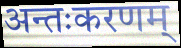
अन्तःकरणम्